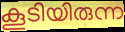
കൂടിയിരുന്ന